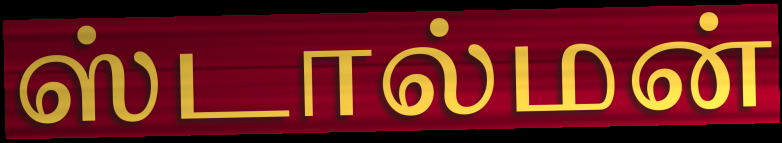
ஸ்டால்மன்